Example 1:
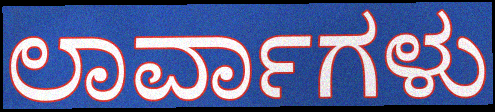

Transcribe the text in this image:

ಲಾರ್ವಾಗಳು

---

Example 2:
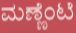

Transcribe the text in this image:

ಮಣ್ಣೆಂಟೆ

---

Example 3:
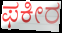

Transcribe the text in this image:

ಫಕೀರ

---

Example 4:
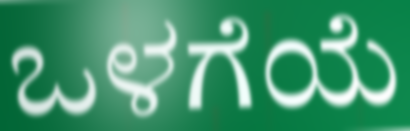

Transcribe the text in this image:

ಒಳಗೆಯೆ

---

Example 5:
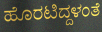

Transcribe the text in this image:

ಹೊರಟಿದ್ದಳಂತೆ